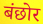
बंछोर